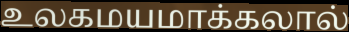
உலகமயமாக்கலால்